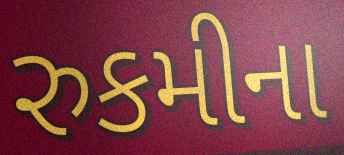
રુકમીના